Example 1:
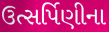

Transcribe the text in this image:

ઉત્સર્પિણીના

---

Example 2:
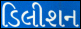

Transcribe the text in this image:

ડિલીશન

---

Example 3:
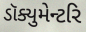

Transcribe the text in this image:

ડૉક્યુમેન્ટરિ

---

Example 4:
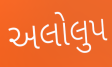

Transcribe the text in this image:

અલોલુપ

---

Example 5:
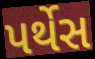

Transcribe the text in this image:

પર્થેસ